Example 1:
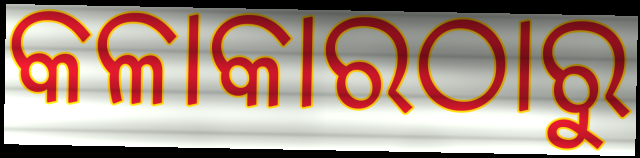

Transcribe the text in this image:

କଳାକାରଠାରୁ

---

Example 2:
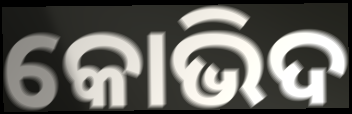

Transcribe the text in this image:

କୋଭିଦ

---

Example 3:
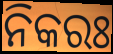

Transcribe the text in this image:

ନିକରଃ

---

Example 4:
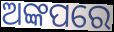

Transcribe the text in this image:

ଅଙ୍କପରେ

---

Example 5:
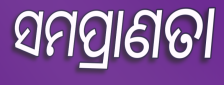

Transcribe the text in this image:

ସମପ୍ରାଣତା